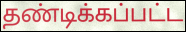
தண்டிக்கப்பட்ட